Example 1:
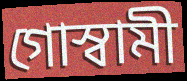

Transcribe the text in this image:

গোস্বামী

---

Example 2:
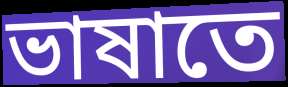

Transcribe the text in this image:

ভাষাতে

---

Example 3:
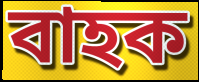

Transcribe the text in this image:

বাহক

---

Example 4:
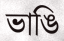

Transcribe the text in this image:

ভাঙি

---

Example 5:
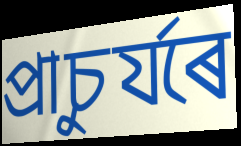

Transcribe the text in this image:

প্ৰাচুৰ্যৰে